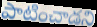
పాటించాడని